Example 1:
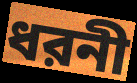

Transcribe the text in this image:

ধরনী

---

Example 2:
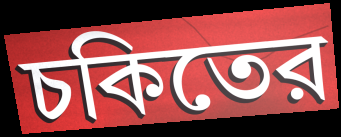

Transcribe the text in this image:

চকিতের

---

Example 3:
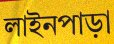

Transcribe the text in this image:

লাইনপাড়া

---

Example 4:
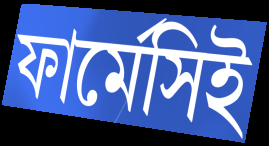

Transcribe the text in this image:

ফার্মেসিই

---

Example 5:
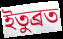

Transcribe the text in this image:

ইতুব্রত